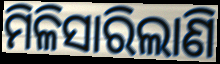
ମିଳିସାରିଲାଣି